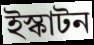
ইস্কাটন